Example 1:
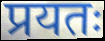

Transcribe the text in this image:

प्रयतः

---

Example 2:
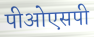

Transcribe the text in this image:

पीओएसपी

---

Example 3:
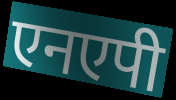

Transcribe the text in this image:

एनएपी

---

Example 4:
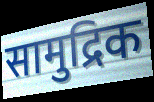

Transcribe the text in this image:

सामुद्रिक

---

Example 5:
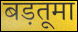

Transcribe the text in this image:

बड़तूमा